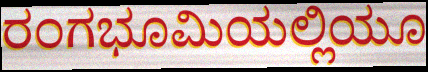
ರಂಗಭೂಮಿಯಲ್ಲಿಯೂ